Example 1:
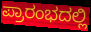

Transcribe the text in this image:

ಪ್ರಾರಂಭದಲ್ಲಿ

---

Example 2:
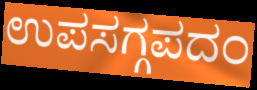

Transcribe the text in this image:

ಉಪಸಗ್ಗಪದಂ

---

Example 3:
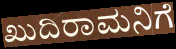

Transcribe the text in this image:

ಖುದಿರಾಮನಿಗೆ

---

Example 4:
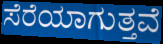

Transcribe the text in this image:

ಸೆರೆಯಾಗುತ್ತವೆ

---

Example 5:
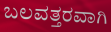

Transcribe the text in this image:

ಬಲವತ್ತರವಾಗಿ